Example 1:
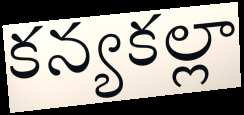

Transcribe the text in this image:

కన్యకల్లా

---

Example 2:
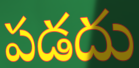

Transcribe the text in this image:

పడదు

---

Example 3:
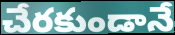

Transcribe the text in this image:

చేరకుండానే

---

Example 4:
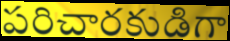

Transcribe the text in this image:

పరిచారకుడిగా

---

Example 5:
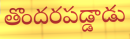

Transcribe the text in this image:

తొందరపడ్డాడు